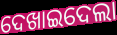
ଦେଖାଇଦେଲା